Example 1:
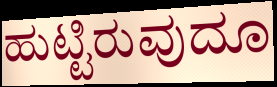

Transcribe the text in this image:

ಹುಟ್ಟಿರುವುದೂ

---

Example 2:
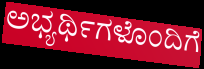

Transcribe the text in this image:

ಅಭ್ಯರ್ಥಿಗಳೊಂದಿಗೆ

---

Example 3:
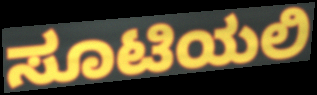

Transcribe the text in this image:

ಸೂಟಿಯಲಿ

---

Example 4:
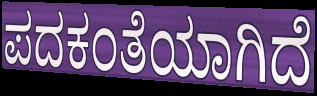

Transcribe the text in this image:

ಪದಕಂತೆಯಾಗಿದೆ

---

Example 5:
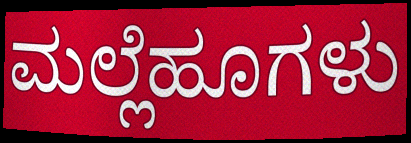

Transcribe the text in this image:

ಮಲ್ಲೆಹೂಗಳು